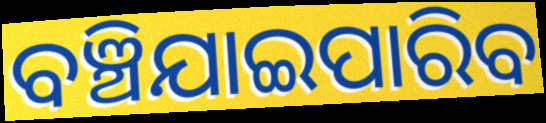
ବଞ୍ଚିଯାଇପାରିବ